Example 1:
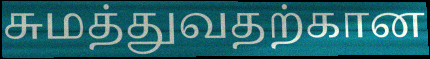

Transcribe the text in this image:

சுமத்துவதற்கான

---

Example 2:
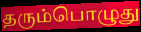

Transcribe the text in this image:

தரும்பொழுது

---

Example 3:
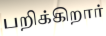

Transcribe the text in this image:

பறிக்கிறார்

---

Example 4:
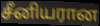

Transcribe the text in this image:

சீனியரான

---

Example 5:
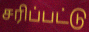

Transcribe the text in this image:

சரிப்பட்டு